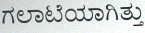
ಗಲಾಟೆಯಾಗಿತ್ತು